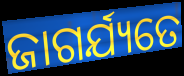
ଜାଗର୍ଯ୍ୟତେ